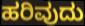
ಹರಿವುದು